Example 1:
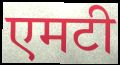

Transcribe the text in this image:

एमटी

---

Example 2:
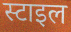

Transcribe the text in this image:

स्टाइल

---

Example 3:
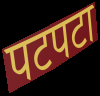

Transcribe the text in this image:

पटपटा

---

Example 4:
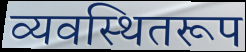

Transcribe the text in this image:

व्यवस्थितरूप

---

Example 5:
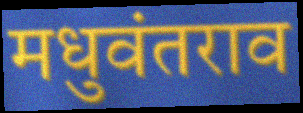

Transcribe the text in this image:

मधुवंतराव